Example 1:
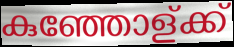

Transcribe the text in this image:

കുഞ്ഞോള്ക്ക്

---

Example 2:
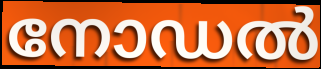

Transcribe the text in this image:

നോഡൽ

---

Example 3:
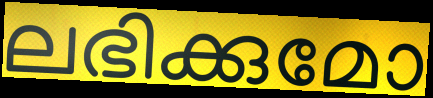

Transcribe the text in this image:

ലഭിക്കുമോ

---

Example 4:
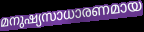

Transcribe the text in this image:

മനുഷ്യസാധാരണമായ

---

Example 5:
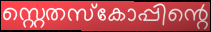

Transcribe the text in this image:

സ്റ്റെതസ്കോപ്പിന്റെ